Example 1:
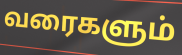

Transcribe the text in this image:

வரைகளும்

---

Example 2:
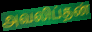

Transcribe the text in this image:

அவலிப்தன்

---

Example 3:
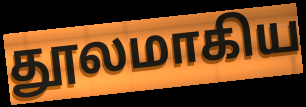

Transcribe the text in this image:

தூலமாகிய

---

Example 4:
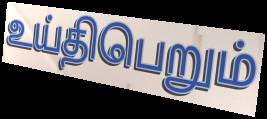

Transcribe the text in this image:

உய்திபெறும்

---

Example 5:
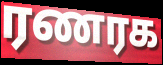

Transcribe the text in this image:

ரணரக